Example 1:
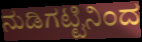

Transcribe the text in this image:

ನುಡಿಗಟ್ಟಿನಿಂದ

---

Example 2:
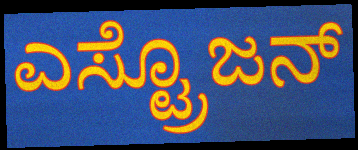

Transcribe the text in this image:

ಎಸ್ಟ್ರೊಜನ್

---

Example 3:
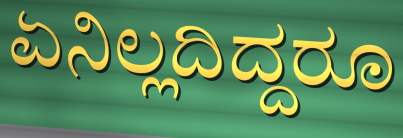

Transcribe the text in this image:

ಏನಿಲ್ಲದಿದ್ದರೂ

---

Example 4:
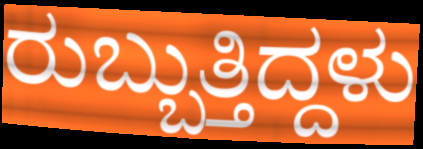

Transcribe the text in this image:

ರುಬ್ಬುತ್ತಿದ್ದಳು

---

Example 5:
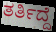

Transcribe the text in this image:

ತರ್ತಿದ್ದೆ